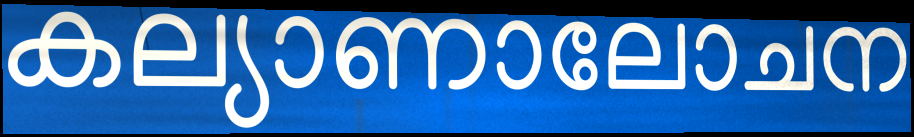
കല്യാണാലോചന